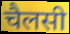
चैलसी